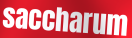
saccharum